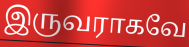
இருவராகவே